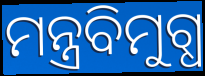
ମନ୍ତ୍ରବିମୁଗ୍ଧ